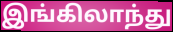
இங்கிலாந்து